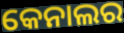
କେନାଲର